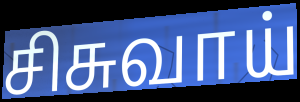
சிசுவாய்